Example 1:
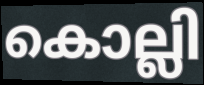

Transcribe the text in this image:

കൊല്ലി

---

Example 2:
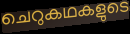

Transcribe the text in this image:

ചെറുകഥകളുടെ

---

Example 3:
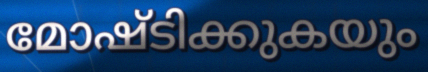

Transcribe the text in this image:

മോഷ്ടിക്കുകയും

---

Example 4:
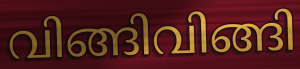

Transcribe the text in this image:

വിങ്ങിവിങ്ങി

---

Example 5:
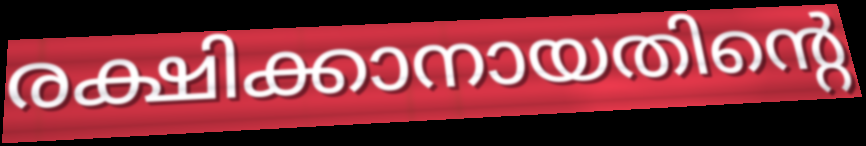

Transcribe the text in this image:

രക്ഷിക്കാനായതിന്റെ